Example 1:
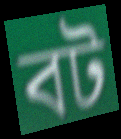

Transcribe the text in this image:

বট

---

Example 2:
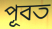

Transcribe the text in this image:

পূবত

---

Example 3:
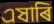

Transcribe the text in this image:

এষাৰি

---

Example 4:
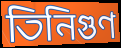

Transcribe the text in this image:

তিনিগুণ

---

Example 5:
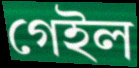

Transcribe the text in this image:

গেইল